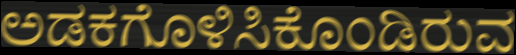
ಅಡಕಗೊಳಿಸಿಕೊಂಡಿರುವ